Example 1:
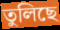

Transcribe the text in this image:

তুলিছে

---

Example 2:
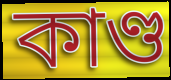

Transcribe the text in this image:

কাণ্ড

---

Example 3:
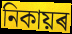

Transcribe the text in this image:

নিকায়ৰ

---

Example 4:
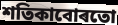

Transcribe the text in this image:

শতিকাবোৰতো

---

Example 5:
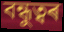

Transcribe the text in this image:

বন্ধুত্বৰ